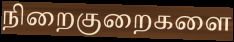
நிறைகுறைகளை